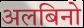
अलबिनो